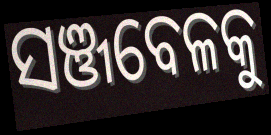
ସଞ୍ଜବେଳକୁ